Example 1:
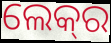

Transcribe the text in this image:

ଲେକ୍‍ର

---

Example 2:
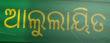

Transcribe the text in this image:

ଆଲୁଲାୟିତ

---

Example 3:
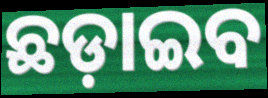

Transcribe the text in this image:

ଛଡ଼ାଇବ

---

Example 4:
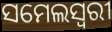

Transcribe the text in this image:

ସମେଲସ୍ୱରୀ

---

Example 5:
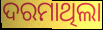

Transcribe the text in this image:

ଦରମାଥିଲା